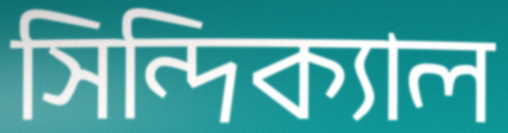
সিন্দিক্যাল